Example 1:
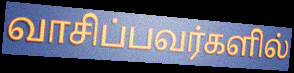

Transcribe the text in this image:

வாசிப்பவர்களில்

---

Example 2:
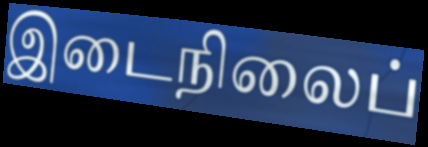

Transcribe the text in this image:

இடைநிலைப்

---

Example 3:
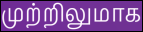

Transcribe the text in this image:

முற்றிலுமாக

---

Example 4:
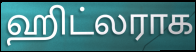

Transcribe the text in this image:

ஹிட்லராக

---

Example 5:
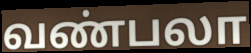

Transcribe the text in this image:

வண்பலா